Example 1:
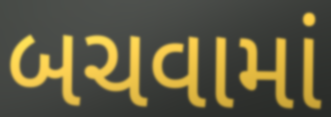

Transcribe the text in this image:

બચવામાં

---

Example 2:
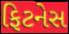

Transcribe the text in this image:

ફિટનેસ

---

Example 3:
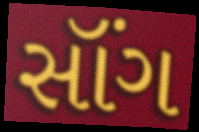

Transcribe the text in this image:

સૉંગ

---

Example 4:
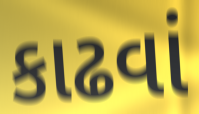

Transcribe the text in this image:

કાઢવાં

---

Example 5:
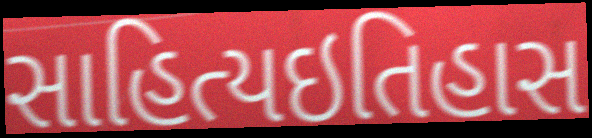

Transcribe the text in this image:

સાહિત્યઇતિહાસ